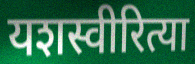
यशस्वीरित्या